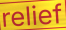
relief